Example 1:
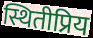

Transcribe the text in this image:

स्थितीप्रिय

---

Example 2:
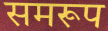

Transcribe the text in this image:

समरूप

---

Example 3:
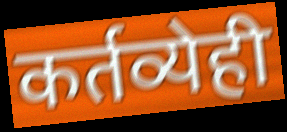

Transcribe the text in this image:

कर्तव्येही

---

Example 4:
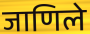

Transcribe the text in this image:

जाणिले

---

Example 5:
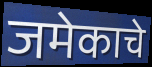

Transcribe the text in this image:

जमेकाचे